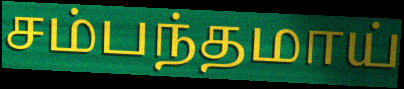
சம்பந்தமாய்